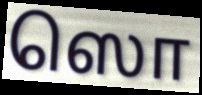
ஸொ